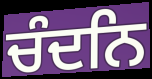
ਚੰਦਨਿ